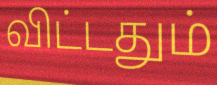
விட்டதும்